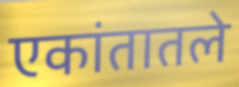
एकांतातले